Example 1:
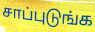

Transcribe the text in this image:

சாப்புடுங்க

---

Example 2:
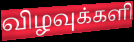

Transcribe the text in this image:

விழவுக்களி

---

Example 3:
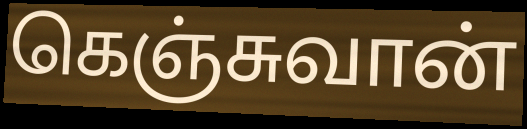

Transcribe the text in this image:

கெஞ்சுவான்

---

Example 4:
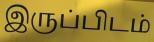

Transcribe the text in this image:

இருப்பிடம்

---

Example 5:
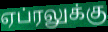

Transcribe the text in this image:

ஏப்ரலுக்கு